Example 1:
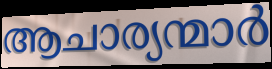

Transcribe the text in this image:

ആചാര്യന്മാർ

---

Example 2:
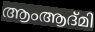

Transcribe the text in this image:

ആംആദ്മി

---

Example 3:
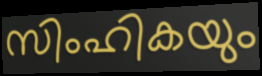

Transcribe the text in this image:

സിംഹികയും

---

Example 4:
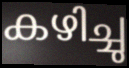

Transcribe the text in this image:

കഴിച്ചു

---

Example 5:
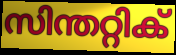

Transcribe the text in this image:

സിന്തറ്റിക്